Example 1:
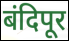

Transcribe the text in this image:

बंदिपूर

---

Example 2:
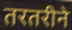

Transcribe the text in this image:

तरतरीने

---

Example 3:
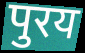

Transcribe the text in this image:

पुरय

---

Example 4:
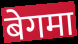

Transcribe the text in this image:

बेगमा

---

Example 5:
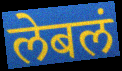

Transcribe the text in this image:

लेबलं